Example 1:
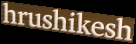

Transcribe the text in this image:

hrushikesh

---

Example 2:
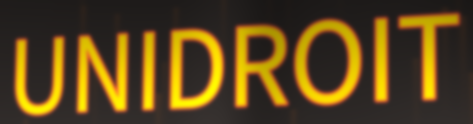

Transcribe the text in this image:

UNIDROIT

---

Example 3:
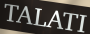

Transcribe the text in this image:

TALATI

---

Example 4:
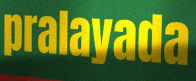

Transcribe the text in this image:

pralayada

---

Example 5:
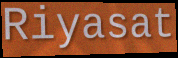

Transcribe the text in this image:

Riyasat